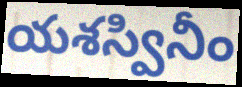
యశస్వినీం